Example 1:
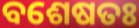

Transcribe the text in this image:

ବଶେଷତଃ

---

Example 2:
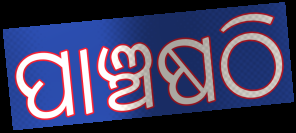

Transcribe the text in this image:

ପାଞ୍ଚଷଠି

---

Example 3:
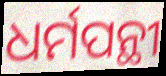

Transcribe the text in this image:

ଧର୍ମପନ୍ଥୀ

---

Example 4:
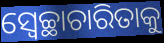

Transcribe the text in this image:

ସ୍ଵେଚ୍ଛାଚାରିତାକୁ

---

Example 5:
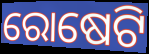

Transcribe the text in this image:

ରୋଷେଟି